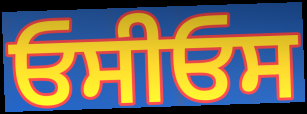
ਓਸੀਓਸ